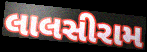
લાલસીરામ